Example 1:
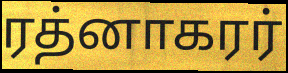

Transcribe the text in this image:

ரத்னாகரர்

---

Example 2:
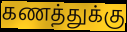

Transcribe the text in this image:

கணத்துக்கு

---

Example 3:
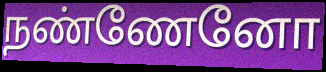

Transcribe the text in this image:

நண்ணேனோ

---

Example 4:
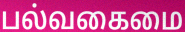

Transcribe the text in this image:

பல்வகைமை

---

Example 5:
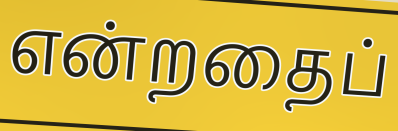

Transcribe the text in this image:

என்றதைப்